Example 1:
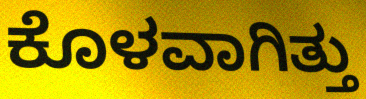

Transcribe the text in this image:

ಕೊಳವಾಗಿತ್ತು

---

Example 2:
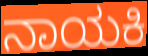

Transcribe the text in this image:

ನಾಯಕಿ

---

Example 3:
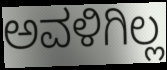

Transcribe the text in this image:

ಅವಳಿಗಿಲ್ಲ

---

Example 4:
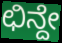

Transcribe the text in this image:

ಛಿನ್ದೇ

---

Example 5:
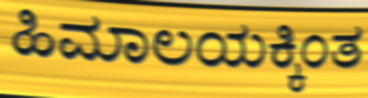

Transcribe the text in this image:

ಹಿಮಾಲಯಕ್ಕಿಂತ